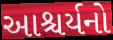
આશ્ચર્યનો